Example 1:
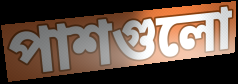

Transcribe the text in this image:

পাশগুলো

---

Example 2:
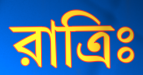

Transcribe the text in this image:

রাত্রিঃ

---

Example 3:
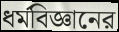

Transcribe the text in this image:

ধর্মবিজ্ঞানের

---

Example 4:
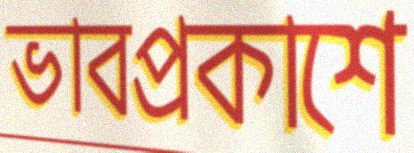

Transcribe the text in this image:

ভাবপ্রকাশে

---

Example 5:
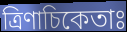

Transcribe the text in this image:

ত্রিণাচিকেতাঃ